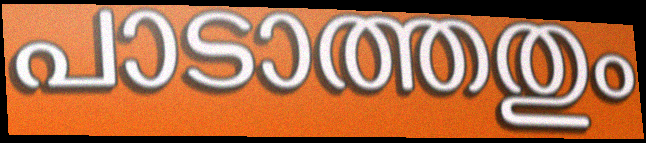
പാടാത്തതും